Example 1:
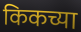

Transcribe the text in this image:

किकच्या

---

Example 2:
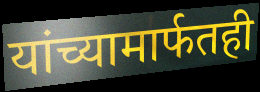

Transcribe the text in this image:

यांच्यामार्फतही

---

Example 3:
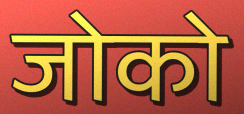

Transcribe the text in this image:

जोको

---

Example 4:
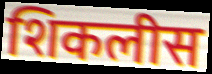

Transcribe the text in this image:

शिकलीस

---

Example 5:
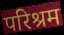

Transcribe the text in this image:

परिश्रम